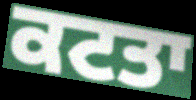
ਕਟਤਾ